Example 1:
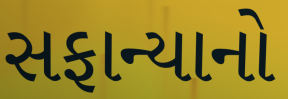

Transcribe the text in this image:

સફાન્યાનો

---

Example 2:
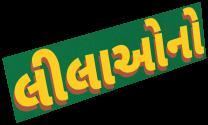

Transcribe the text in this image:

લીલાઓનો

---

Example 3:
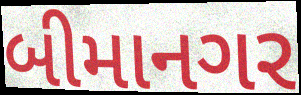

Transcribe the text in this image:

બીમાનગર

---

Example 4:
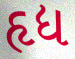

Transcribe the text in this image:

હૃદ્ય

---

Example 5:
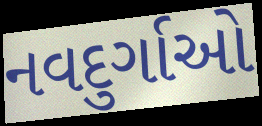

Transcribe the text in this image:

નવદુર્ગાઓ